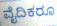
ವೈದಿಕರೂ